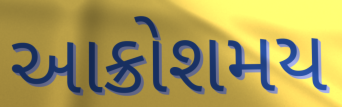
આક્રોશમય